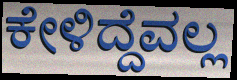
ಕೇಳಿದ್ದೆವಲ್ಲ